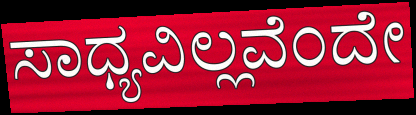
ಸಾಧ್ಯವಿಲ್ಲವೆಂದೇ